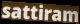
sattiram